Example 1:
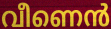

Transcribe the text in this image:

വീണെൻ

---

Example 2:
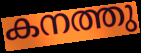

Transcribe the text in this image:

കനത്തു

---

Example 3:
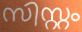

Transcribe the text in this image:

സിസ്റ്റം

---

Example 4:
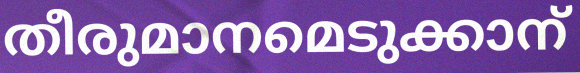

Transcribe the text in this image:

തീരുമാനമെടുക്കാന്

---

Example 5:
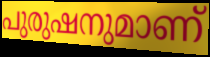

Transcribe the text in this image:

പുരുഷനുമാണ്